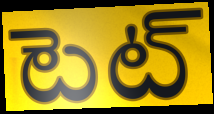
టెట్